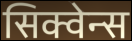
सिक्वेन्स